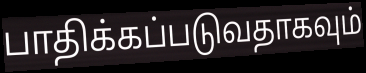
பாதிக்கப்படுவதாகவும்